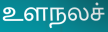
உளநலச்